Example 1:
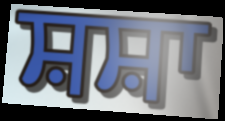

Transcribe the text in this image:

ਸ਼ਸ਼ਾ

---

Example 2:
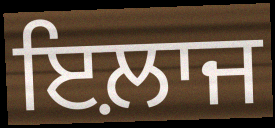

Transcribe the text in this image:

ਇਲ਼ਾਜ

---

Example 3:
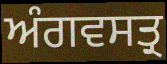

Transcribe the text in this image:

ਅੰਗਵਸਤ੍ਰ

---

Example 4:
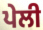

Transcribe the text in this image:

ਪੇਲੀ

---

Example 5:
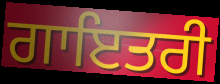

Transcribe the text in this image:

ਗਾਇਤਰੀ